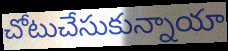
చోటుచేసుకున్నాయా